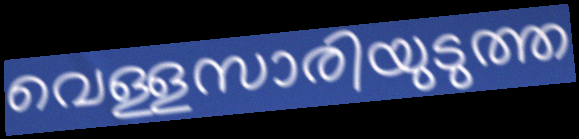
വെള്ളസാരിയുടുത്ത